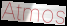
Atmos